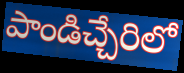
పాండిచ్చేరిలో